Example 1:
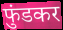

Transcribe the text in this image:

फुंडकर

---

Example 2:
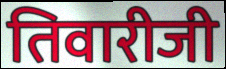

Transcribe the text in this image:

तिवारीजी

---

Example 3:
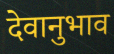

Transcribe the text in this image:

देवानुभाव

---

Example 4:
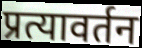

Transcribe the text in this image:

प्रत्यावर्तन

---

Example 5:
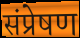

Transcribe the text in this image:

संप्रेषण